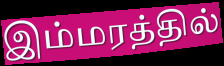
இம்மரத்தில்